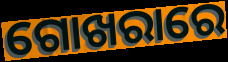
ଗୋଖରାରେ